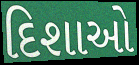
દિશાઓ